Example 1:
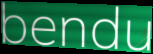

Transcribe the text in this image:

bendu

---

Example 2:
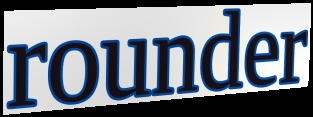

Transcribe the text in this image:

rounder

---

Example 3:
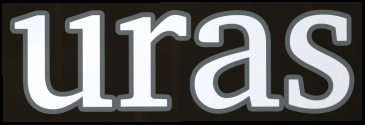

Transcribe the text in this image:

uras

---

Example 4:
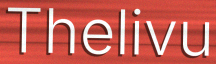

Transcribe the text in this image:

Thelivu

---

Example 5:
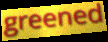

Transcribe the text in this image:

greened